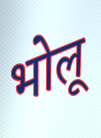
भोलू